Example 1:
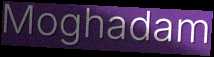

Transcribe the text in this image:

Moghadam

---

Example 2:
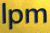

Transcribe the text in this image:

lpm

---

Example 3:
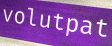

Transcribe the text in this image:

volutpat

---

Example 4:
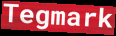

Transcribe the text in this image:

Tegmark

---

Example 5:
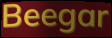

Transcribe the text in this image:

Beegar